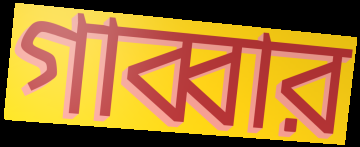
গাব্বার